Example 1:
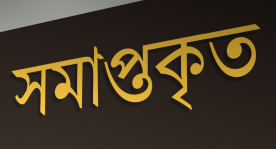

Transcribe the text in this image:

সমাপ্তকৃত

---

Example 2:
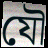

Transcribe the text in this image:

যৌ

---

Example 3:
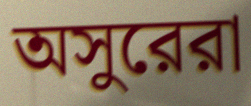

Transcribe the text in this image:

অসুরেরা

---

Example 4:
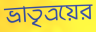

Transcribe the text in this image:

ভ্রাতৃত্রয়ের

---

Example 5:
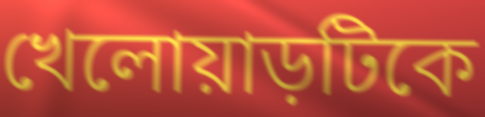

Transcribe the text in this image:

খেলোয়াড়টিকে